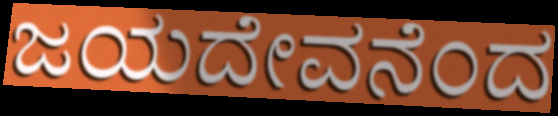
ಜಯದೇವನೆಂದ